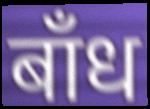
बाँध